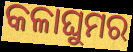
କଳାଘୁମର